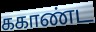
ககாண்ட